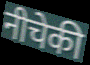
नीचेकी